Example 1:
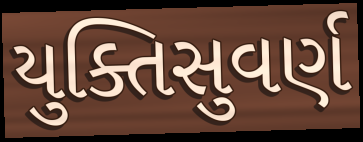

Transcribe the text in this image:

યુક્તિસુવર્ણ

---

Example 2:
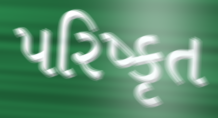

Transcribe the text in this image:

પરિષ્કૃત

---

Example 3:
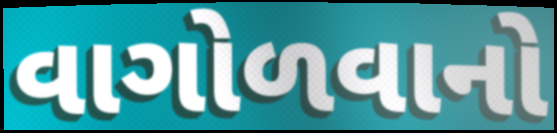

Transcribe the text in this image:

વાગોળવાનો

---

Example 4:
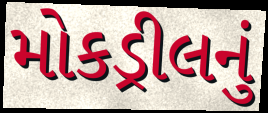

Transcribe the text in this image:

મોકડ્રીલનું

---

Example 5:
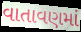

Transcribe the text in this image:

વાતાવણમાં